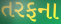
તરફના